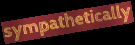
sympathetically